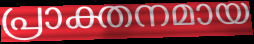
പ്രാക്തനമായ